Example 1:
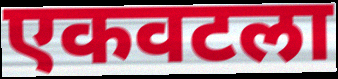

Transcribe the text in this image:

एकवटला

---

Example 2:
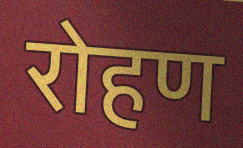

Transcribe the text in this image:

रोहण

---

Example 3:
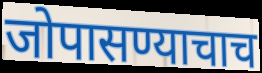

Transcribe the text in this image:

जोपासण्याचाच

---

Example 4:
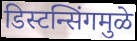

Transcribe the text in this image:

डिस्टन्सिंगमुळे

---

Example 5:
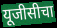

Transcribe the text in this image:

यूजीसीचा